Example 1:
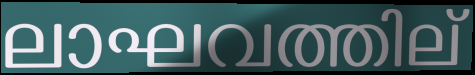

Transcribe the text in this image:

ലാഘവത്തില്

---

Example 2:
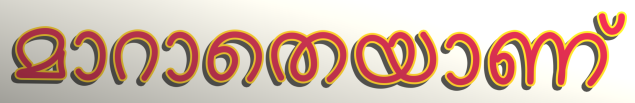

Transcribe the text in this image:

മാറാതെയാണ്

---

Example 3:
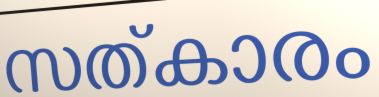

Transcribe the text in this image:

സത്കാരം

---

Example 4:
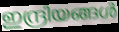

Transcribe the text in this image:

ഇന്ദ്രിയങ്ങൾ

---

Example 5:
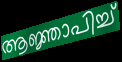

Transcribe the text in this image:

ആജ്ഞാപിച്ച്